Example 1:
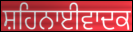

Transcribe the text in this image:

ਸ਼ਹਿਨਾਈਵਾਦਕ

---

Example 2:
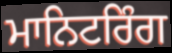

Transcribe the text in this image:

ਮਾਨਿਟਰਿੰਗ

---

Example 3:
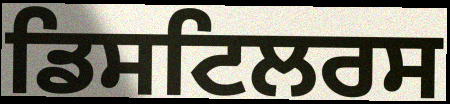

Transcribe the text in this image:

ਡਿਸਟਿਲਰਸ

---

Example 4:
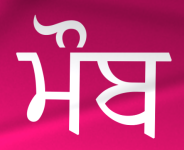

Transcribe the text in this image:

ਮੌਬ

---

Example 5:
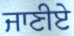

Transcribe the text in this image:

ਜਾਣੀਏ